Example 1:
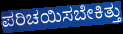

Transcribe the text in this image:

ಪರಿಚಯಿಸಬೇಕಿತ್ತು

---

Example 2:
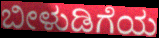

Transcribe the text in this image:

ಬೀಳುಡಿಗೆಯ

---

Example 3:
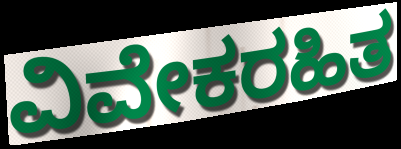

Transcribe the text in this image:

ವಿವೇಕರಹಿತ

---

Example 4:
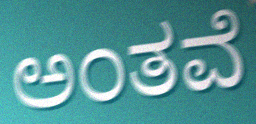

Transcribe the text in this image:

ಅಂತವೆ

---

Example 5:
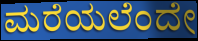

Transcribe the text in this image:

ಮರೆಯಲೆಂದೇ